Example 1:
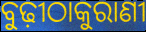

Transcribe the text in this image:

ବୁଢ଼ୀଠାକୁରାଣୀ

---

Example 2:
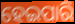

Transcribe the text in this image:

ହେଇପାରି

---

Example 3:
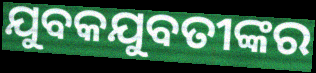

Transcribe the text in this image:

ଯୁବକଯୁବତୀଙ୍କର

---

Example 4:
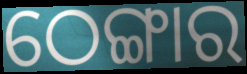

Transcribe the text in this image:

ଠେଙ୍ଗାର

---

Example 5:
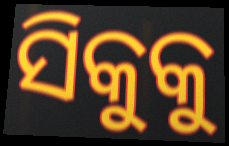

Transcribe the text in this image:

ସିକୁକୁ